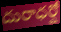
దురాధర్షో